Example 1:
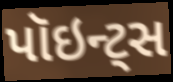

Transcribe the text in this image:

પૉઇન્ટ્સ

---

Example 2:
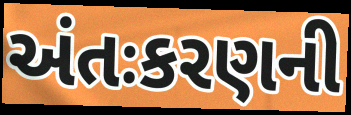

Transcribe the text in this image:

અંતઃકરણની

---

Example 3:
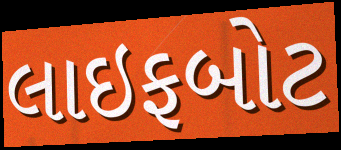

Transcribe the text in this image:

લાઇફબોટ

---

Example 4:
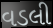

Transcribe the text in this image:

વડલી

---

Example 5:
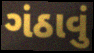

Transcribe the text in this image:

ગંઠાવું